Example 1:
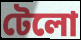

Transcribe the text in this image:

টেলো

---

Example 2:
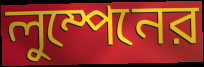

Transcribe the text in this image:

লুম্পেনের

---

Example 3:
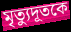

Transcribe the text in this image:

মৃত্যুদূতকে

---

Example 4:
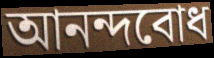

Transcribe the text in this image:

আনন্দবোধ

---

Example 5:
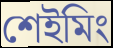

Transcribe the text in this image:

শেইমিং